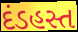
દંડહસ્ત